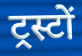
ट्रस्टों